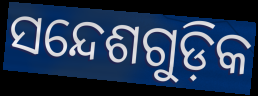
ସନ୍ଦେଶଗୁଡ଼ିକ